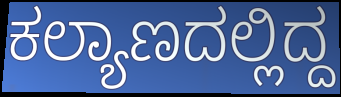
ಕಲ್ಯಾಣದಲ್ಲಿದ್ದ